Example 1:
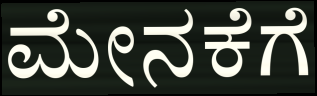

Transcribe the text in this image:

ಮೇನಕೆಗೆ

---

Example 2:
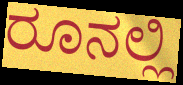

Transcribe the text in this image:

ರೂನಲ್ಲಿ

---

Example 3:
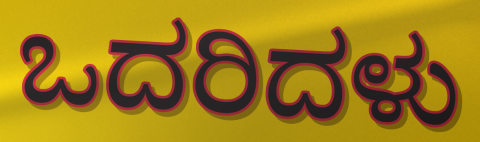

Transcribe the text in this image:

ಒದರಿದಳು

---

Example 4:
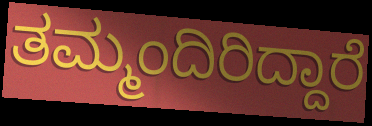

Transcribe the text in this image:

ತಮ್ಮಂದಿರಿದ್ದಾರೆ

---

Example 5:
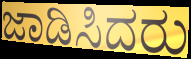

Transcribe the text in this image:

ಜಾಡಿಸಿದರು